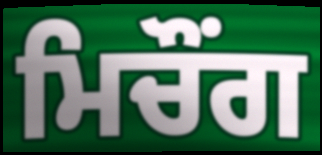
ਮਿਚੌਂਗ